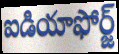
ఐడియాఫోర్జ్